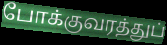
போக்குவரத்துப்